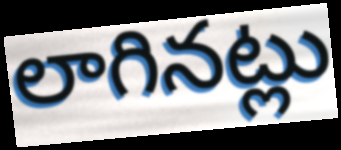
లాగినట్లు